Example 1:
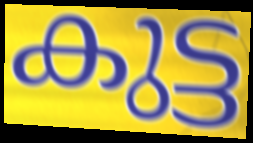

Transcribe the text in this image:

കുട്ട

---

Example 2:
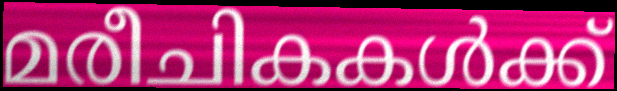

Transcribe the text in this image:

മരീചികകൾക്ക്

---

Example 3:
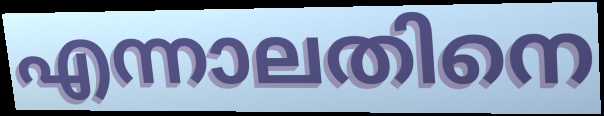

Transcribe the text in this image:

എന്നാലതിനെ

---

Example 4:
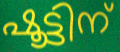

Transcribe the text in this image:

ഷൂട്ടിന്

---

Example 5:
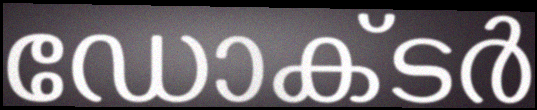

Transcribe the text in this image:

ഡോക്‌ടർ